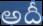
అదీ